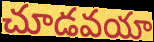
చూడవయా